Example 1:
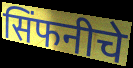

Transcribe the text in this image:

सिंफनीचे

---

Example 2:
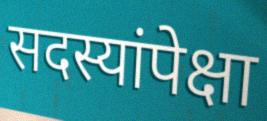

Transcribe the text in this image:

सदस्यांपेक्षा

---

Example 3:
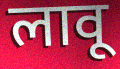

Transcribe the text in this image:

लावू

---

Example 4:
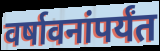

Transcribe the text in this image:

वर्षावनांपर्यंत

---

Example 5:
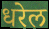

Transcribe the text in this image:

धरेल